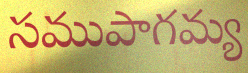
సముపాగమ్య